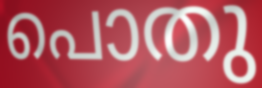
പൊതു